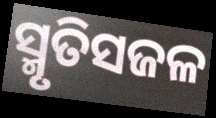
ସ୍ମୃତିସଜଳ